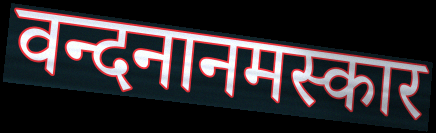
वन्दनानमस्कार